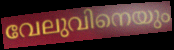
വേലുവിനെയും